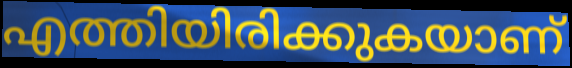
എത്തിയിരിക്കുകയാണ്